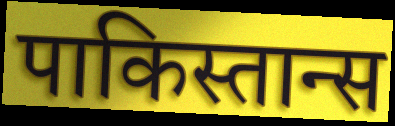
पाकिस्तान्स